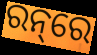
ରନ୍‌ରେ